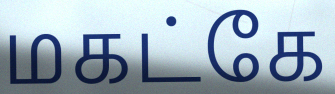
மகட்கே